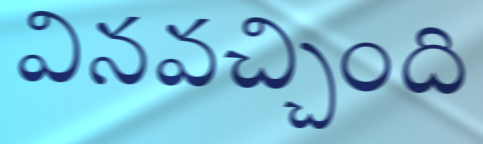
వినవచ్చింది